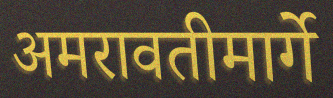
अमरावतीमार्गे